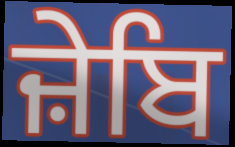
ਜ਼ੇਬਿ